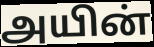
அயின்